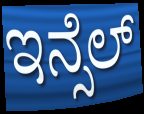
ಇನ್ಸೆಲ್